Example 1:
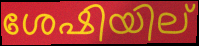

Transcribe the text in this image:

ശേഷിയില്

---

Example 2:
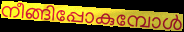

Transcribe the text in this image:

നീങ്ങിപ്പോകുമ്പോൾ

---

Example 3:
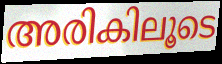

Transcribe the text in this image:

അരികിലൂടെ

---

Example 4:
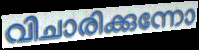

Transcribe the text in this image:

വിചാരിക്കുന്നോ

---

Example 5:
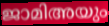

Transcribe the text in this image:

ജാമിഅയും